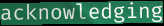
acknowledging